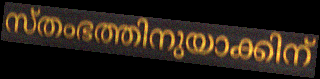
സ്തംഭത്തിനുയാക്കിന്